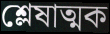
শ্লেষাত্মক